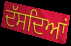
ਦੱਸਦਿਆਂ